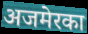
अजमेरका